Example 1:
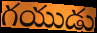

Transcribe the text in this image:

గయుడు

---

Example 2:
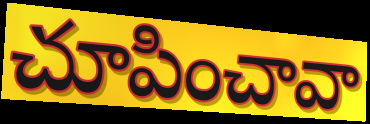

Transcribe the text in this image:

చూపించావా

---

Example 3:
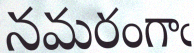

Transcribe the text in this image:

నమరంగాఁ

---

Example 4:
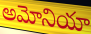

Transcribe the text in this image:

అమోనియా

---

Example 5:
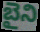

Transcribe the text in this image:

బైని